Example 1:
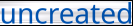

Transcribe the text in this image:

uncreated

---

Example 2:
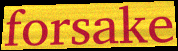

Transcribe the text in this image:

forsake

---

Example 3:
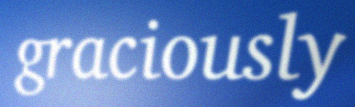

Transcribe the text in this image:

graciously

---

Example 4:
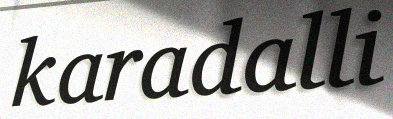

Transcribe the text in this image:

karadalli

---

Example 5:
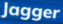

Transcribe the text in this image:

Jagger